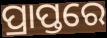
ପ୍ରାପ୍ତରେ